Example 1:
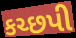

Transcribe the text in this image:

કચ્છપી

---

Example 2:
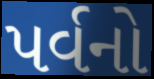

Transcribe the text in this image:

પર્વનો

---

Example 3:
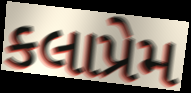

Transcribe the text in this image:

કલાપ્રેમ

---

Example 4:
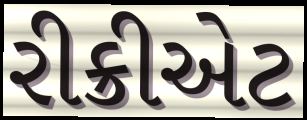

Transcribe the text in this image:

રીક્રીએટ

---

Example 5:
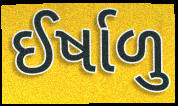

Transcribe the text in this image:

ઈર્ષાળુ